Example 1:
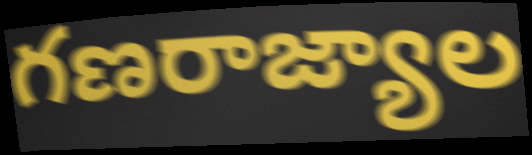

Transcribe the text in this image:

గణరాజ్యాల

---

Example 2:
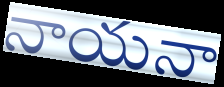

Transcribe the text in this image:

నాయనా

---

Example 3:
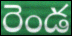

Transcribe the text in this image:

రెండ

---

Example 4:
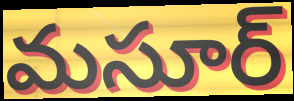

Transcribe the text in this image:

మసూర్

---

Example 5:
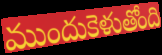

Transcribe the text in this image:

ముందుకెళుతోంది